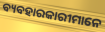
ବ୍ୟବହାରକାରୀମାନେ